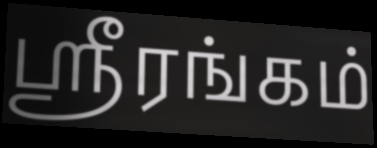
ஸ்ரீரங்கம்